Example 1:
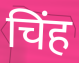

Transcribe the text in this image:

चिंह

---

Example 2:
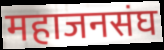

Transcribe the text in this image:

महाजनसंघ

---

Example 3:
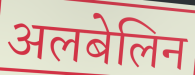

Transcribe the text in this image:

अलबेलिन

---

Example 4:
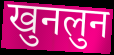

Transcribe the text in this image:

खुनलुन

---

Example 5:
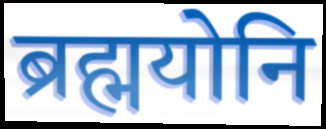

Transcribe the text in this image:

ब्रह्मयोनि